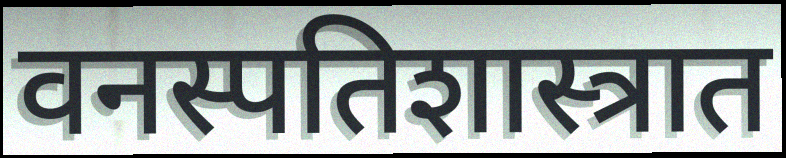
वनस्पतिशास्त्रात